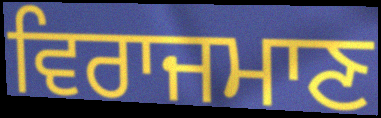
ਵਿਰਾਜਮਾਣ